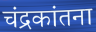
चंद्रकांतना